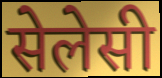
सेलेसी